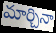
మార్చినా